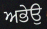
ਅਭੇਉ